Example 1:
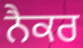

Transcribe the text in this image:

ਨੈਕਰ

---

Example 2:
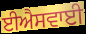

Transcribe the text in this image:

ਈਐਸਵਾਈ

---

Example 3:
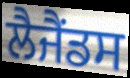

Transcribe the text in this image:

ਲੈਜੈਂਡਸ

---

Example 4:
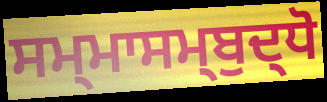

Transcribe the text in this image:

ਸਮ੍ਮਾਸਮ੍ਬੁਦ੍ਧੋ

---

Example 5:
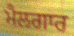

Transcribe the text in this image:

ਮੈਲਗਾਰ